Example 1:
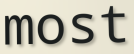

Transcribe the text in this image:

most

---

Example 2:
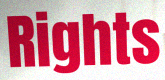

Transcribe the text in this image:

Rights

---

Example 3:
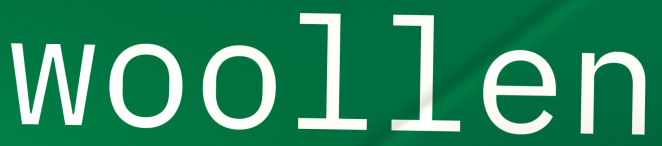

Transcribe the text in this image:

woollen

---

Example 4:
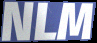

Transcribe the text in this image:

NLM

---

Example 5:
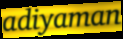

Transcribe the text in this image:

adiyaman